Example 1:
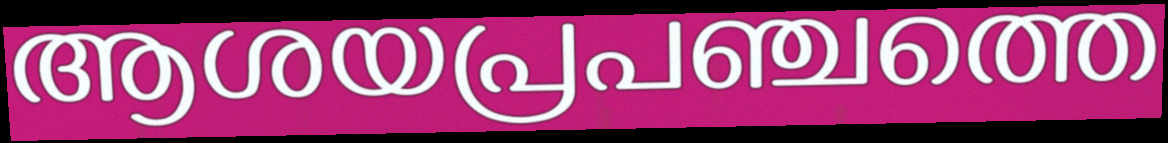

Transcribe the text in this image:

ആശയപ്രപഞ്ചത്തെ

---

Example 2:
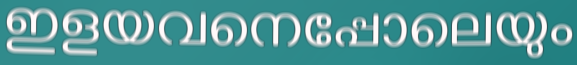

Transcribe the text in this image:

ഇളയവനെപ്പോലെയും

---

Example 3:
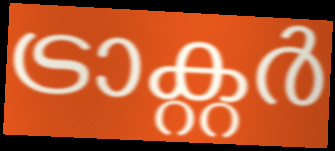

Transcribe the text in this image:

ട്രാക്റ്റർ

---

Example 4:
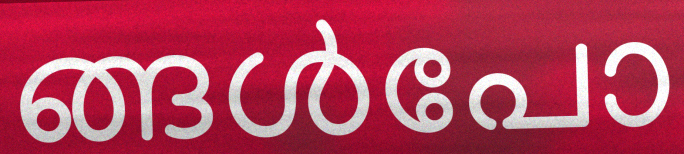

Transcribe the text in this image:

ങ്ങൾപോ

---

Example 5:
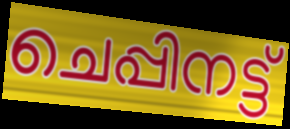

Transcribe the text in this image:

ചെപ്പിനട്ട്